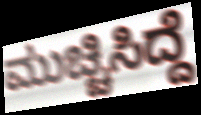
ಮುಚ್ಚಿಸಿದ್ದೆ